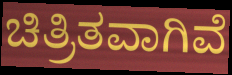
ಚಿತ್ರಿತವಾಗಿವೆ